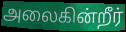
அலைகின்றீர்